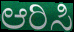
ಆರಿಸಿ